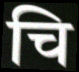
चि